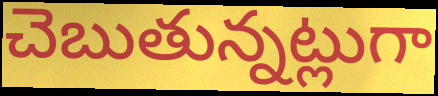
చెబుతున్నట్లుగా